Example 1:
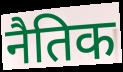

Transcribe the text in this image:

नैतिक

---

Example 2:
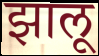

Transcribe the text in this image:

झालू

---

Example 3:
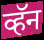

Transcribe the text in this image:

व्हॅन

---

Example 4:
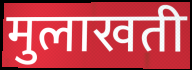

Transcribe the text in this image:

मुलाखती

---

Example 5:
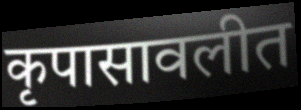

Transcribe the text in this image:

कृपासावलीत